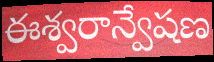
ఈశ్వరాన్వేషణ